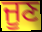
ਜੂਣ